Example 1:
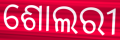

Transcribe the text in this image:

ଶୋଲରୀ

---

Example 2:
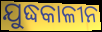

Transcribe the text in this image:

ଯୁଦ୍ଧକାଳୀନ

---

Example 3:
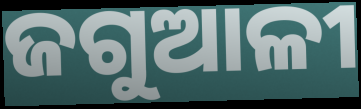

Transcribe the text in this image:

ଜଗୁଆଳୀ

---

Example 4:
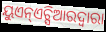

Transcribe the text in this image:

ୟୁଏନ୍ଏଚ୍ସିଆରଦ୍ୱାରା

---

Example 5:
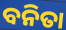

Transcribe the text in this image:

ବନିତା